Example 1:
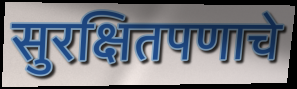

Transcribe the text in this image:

सुरक्षितपणाचे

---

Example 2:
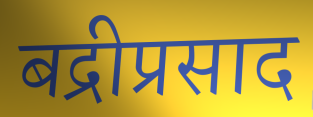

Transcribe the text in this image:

बद्रीप्रसाद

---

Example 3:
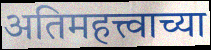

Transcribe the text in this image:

अतिमहत्त्वाच्या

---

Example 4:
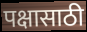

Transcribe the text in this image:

पक्षासाठी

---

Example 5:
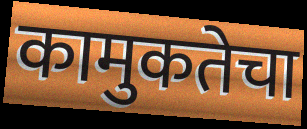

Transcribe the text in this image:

कामुकतेचा